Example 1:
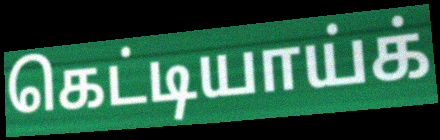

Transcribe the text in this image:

கெட்டியாய்க்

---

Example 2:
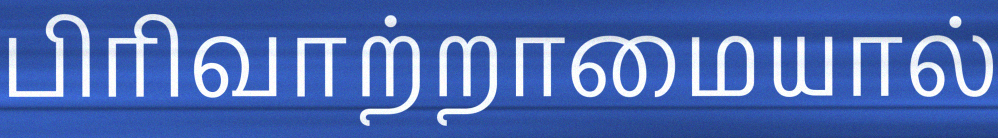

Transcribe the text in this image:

பிரிவாற்றாமையால்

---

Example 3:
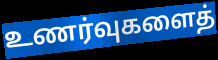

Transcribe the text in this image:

உணர்வுகளைத்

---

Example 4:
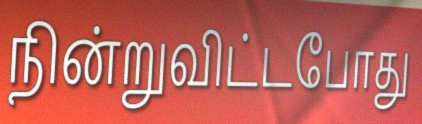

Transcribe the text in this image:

நின்றுவிட்டபோது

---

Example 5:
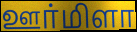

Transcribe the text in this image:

ஊர்மிளா